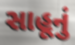
સાહૂનું